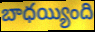
బాధయ్యింది